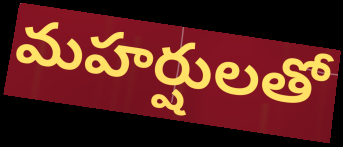
మహర్షులతో